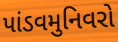
પાંડવમુનિવરો